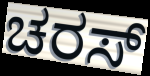
ಚರಸ್